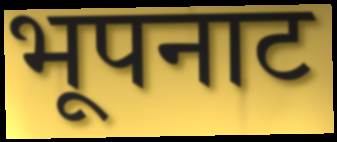
भूपनाट